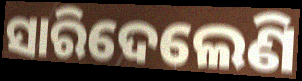
ସାରିଦେଲେଣି